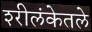
श्रीलंकेतले